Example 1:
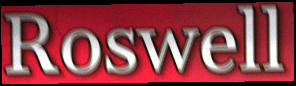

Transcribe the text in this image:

Roswell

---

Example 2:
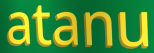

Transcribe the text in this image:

atanu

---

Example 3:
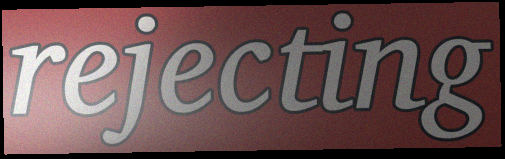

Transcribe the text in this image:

rejecting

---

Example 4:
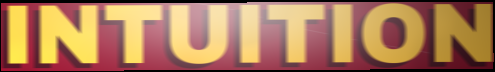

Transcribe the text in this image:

INTUITION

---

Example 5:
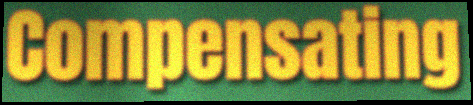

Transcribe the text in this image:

Compensating